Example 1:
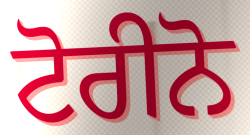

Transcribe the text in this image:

ਟੋਰੀਨੋ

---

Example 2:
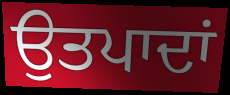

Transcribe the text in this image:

ਉਤਪਾਦਾਂ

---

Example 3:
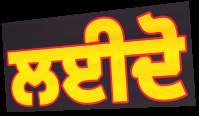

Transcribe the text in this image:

ਲਈਦੋ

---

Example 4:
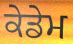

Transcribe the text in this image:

ਕੇਡੇਮ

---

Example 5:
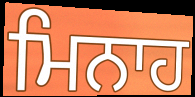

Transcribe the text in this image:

ਮਿਨਾਹ